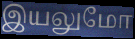
இயலுமோ